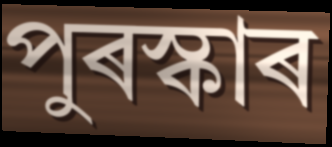
পুৰস্কাৰ